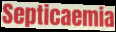
Septicaemia